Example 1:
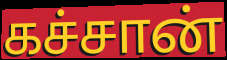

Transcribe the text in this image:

கச்சான்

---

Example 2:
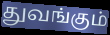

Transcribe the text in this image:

துவங்கும்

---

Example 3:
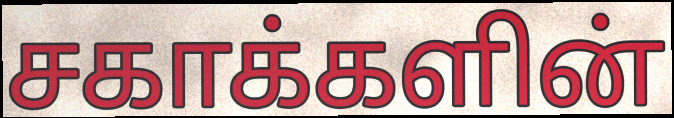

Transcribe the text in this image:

சகாக்களின்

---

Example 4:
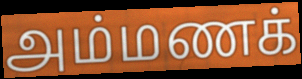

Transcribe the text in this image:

அம்மணக்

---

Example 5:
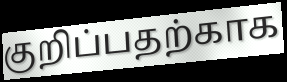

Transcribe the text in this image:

குறிப்பதற்காக